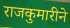
राजकुमारीने